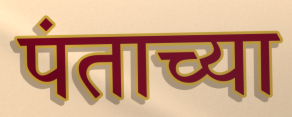
पंताच्या